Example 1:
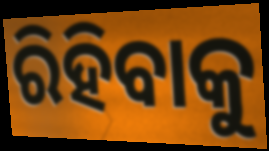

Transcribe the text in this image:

ରିହିବାକୁ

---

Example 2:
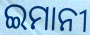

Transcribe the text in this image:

ଇମାନୀ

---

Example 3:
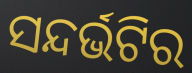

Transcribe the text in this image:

ସନ୍ଦର୍ଭଟିର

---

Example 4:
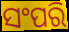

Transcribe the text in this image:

ସଂପରି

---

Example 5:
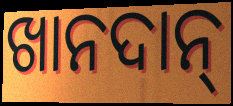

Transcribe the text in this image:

ଖାନଦାନ୍